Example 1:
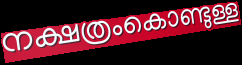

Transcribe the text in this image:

നക്ഷത്രംകൊണ്ടുള്ള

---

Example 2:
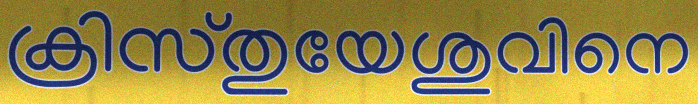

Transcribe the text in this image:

ക്രിസ്തുയേശുവിനെ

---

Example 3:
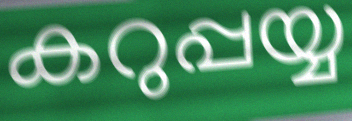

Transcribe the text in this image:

കറുപ്പയ്യ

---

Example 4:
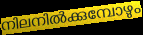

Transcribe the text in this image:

നിലനിൽക്കുമ്പോഴും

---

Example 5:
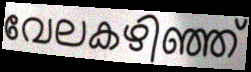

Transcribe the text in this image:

വേലകഴിഞ്ഞ്